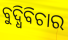
ବୁଦ୍ଧିବିଚାର